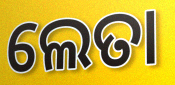
ଲେତା